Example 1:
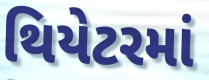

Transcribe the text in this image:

થિયેટરમાં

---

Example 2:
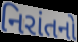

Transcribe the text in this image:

નિરાંતનો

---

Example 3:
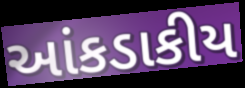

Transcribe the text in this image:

આંકડાકીય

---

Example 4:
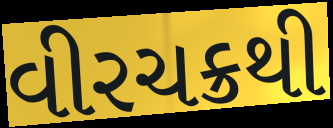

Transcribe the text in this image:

વીરચક્રથી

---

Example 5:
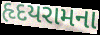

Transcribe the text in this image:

હૃદયરામના